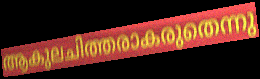
ആകുലചിത്തരാകരുതെന്നു